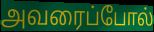
அவரைப்போல்